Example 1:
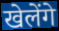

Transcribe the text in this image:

खेलेंगे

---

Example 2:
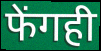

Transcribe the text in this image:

फेंगही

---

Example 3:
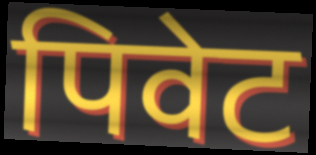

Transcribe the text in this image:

पिवेट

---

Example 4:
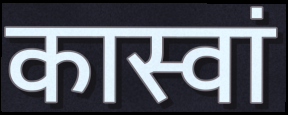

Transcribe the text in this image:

कास्वां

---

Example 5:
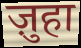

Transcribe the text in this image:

ज़ुहा